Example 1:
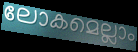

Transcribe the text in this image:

ലോകമെല്ലാം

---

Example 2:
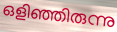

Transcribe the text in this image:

ഒളിഞ്ഞിരുന്നു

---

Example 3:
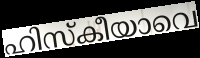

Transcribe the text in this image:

ഹിസ്കീയാവെ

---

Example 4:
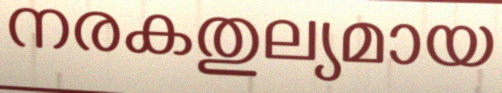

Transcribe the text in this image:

നരകതുല്യമായ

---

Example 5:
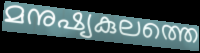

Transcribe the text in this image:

മനുഷ്യകുലത്തെ